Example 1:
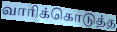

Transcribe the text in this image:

வாரிக்கொடுத்த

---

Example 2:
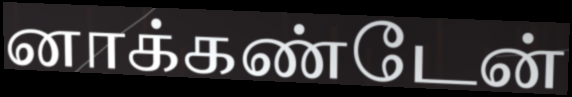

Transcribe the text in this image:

னாக்கண்டேன்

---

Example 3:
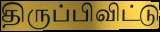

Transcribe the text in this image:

திருப்பிவிட்டு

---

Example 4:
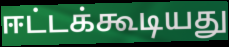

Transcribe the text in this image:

ஈட்டக்கூடியது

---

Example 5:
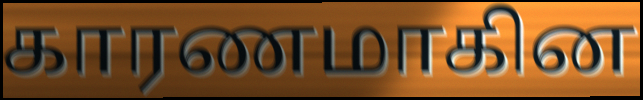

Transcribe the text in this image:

காரணமாகின